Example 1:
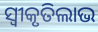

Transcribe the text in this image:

ସ୍ଵୀକୃତିଲାଭ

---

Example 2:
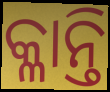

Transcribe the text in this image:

କ୍ଳାନ୍ତି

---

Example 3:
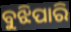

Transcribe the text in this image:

ବୁଝିପାରି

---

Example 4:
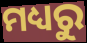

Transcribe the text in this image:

ମଧ୍ୟରୁ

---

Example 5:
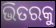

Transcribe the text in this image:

ଭିତରକୁ